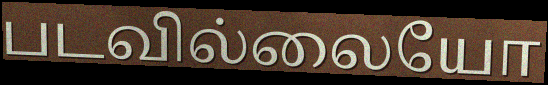
படவில்லையோ